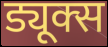
ड्यूक्‍स